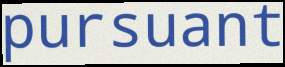
pursuant